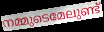
നമ്മുടെമേലുണ്ട്